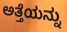
ಅತ್ತೆಯನ್ನು